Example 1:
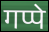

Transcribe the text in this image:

गप्पे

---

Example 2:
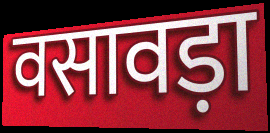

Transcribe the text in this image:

वसावड़ा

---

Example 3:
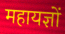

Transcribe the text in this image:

महायज्ञों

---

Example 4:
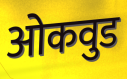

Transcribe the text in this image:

ओकवुड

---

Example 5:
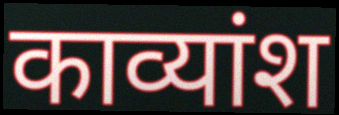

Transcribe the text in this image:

काव्यांश